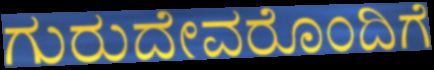
ಗುರುದೇವರೊಂದಿಗೆ